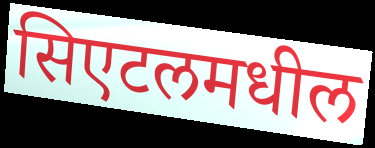
सिएटलमधील